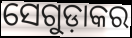
ସେଗୁଡ଼ାକର